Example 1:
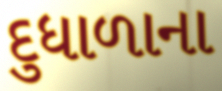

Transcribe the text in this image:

દુધાળાના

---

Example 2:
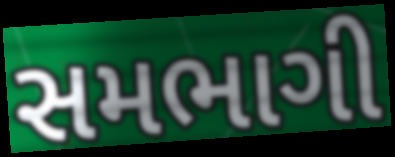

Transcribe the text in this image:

સમભાગી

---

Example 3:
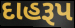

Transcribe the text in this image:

દાહરૂપ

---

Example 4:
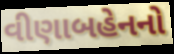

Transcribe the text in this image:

વીણાબહેનનો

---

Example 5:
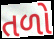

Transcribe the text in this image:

તળો